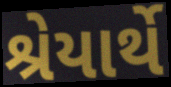
શ્રેયાર્થે